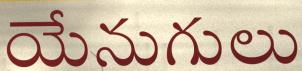
యేనుగులు